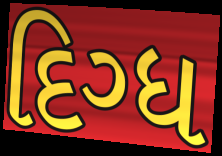
દિગ્ધ